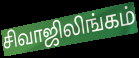
சிவாஜிலிங்கம்